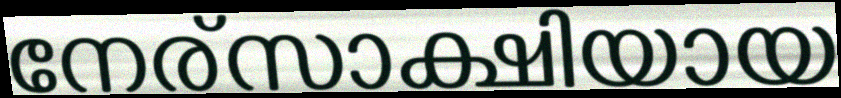
നേര്സാക്ഷിയായ